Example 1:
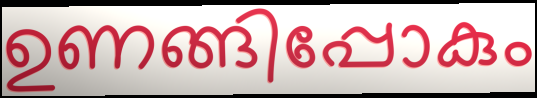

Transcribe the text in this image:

ഉണങ്ങിപ്പോകും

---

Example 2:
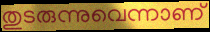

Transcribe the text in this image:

തുടരുന്നുവെന്നാണ്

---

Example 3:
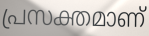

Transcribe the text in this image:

പ്രസക്തമാണ്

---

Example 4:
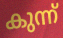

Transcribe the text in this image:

കുന്ന്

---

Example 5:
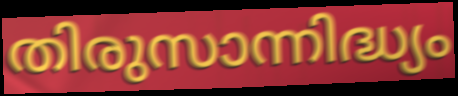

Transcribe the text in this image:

തിരുസാന്നിദ്ധ്യം